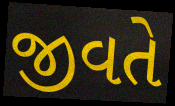
જીવતે